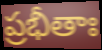
ప్రభీతాః